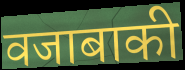
वजाबाकी